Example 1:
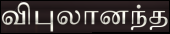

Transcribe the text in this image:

விபுலானந்த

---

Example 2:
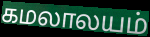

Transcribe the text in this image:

கமலாலயம்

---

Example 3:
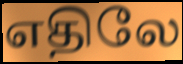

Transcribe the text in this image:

எதிலே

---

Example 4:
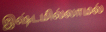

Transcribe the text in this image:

இஷ்டமில்லாமல்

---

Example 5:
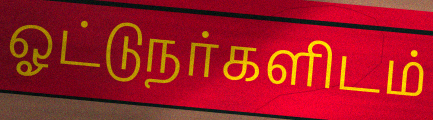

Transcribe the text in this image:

ஓட்டுநர்களிடம்